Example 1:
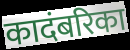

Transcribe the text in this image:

कादंबरिका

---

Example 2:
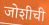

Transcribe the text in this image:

जोशीची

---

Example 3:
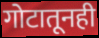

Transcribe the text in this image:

गोटातूनही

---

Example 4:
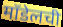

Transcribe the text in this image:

मॉडेलची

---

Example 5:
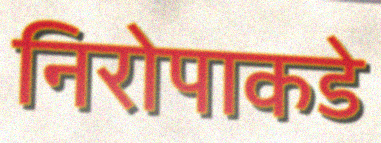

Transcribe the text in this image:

निरोपाकडे